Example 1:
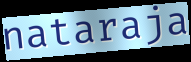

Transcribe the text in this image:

nataraja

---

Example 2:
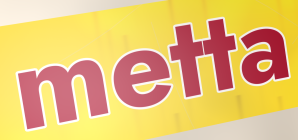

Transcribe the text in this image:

metta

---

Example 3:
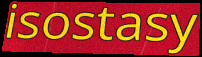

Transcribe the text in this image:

isostasy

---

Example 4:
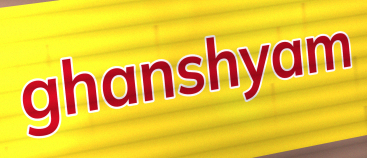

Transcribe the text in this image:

ghanshyam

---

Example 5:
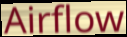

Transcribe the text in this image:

Airflow